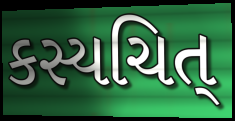
કસ્યચિત્